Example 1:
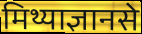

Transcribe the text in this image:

मिथ्याज्ञानसे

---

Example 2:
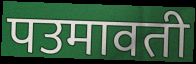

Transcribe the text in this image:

पउमावती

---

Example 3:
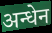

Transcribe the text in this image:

अन्धेन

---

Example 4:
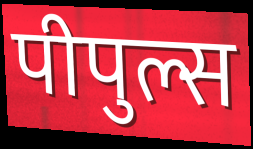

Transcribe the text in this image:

पीपुल्स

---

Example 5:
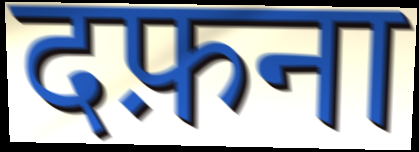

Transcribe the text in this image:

दफ़ना